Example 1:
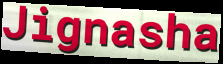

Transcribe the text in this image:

Jignasha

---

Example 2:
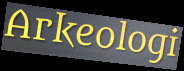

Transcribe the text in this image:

Arkeologi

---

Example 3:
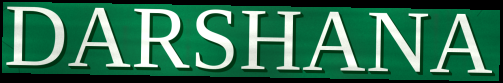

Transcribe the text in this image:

DARSHANA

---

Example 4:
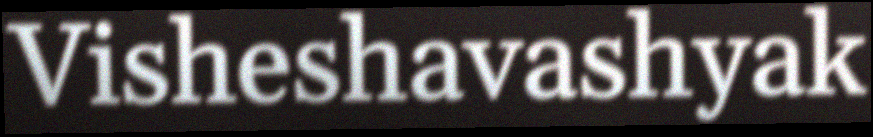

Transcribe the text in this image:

Visheshavashyak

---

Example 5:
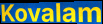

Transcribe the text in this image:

Kovalam